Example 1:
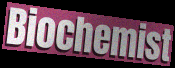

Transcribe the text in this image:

Biochemist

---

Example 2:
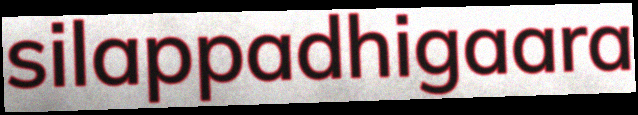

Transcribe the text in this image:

silappadhigaara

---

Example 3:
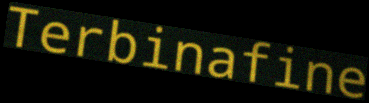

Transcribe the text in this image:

Terbinafine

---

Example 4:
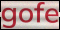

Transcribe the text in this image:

gofe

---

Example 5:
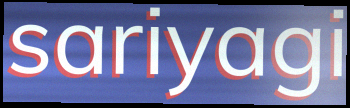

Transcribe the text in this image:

sariyagi